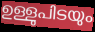
ഉള്ളുപിടയും